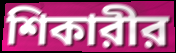
শিকারীর